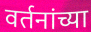
वर्तनांच्या